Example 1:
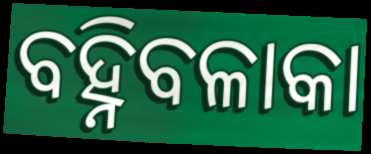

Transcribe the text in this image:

ବହ୍ନିବଳାକା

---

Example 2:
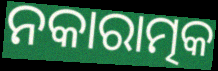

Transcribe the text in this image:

ନକାରାତ୍ମକ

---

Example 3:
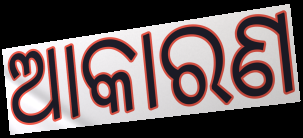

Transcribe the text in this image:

ଆକାରଣ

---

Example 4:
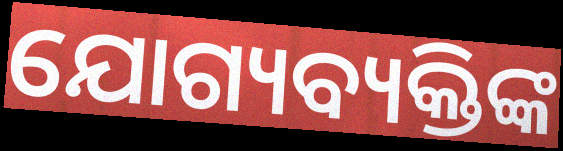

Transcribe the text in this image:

ଯୋଗ୍ୟବ୍ୟକ୍ତିଙ୍କ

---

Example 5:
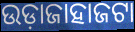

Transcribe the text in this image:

ଉଡ଼ାଜାହାଜଟା